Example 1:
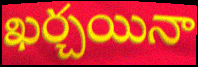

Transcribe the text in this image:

ఖర్చయినా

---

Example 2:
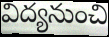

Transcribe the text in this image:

విద్యనుంచి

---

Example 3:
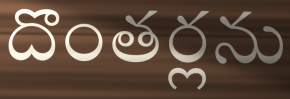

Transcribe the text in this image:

దొంతర్లను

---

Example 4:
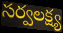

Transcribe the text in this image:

సర్వలక్ష్య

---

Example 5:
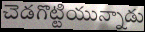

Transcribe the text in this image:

చెడగొట్టియున్నాడు